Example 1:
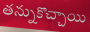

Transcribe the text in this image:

తన్నుకొచ్చాయి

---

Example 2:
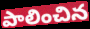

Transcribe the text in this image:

పాలించిన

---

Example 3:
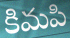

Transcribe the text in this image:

కిమపి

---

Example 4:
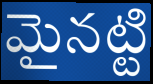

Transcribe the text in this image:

మైనట్టి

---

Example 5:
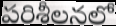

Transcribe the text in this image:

పరిశీలనలో